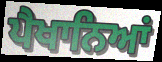
ਪੈਖਾਨਿਆਂ